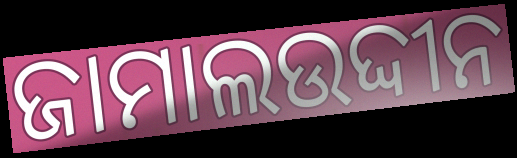
ଜାମାଲଉଦ୍ଦୀନ